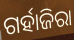
ଗର୍ହାଜିରା